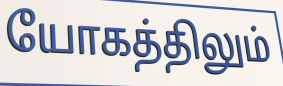
யோகத்திலும்